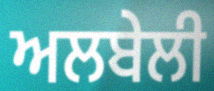
ਅਲਬੇਲੀ